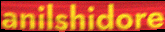
anilshidore